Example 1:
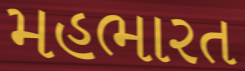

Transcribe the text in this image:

મહભારત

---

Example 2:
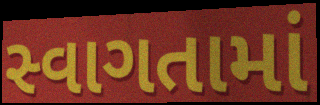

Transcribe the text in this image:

સ્વાગતામાં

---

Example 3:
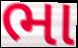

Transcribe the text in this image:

ભા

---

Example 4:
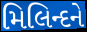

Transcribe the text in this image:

મિલિન્દને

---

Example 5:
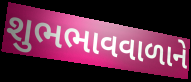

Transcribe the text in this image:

શુભભાવવાળાને